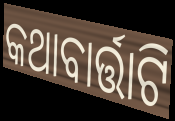
କଥାବାର୍ତ୍ତାଟି